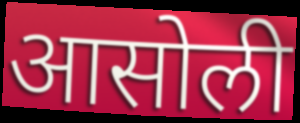
आसोली